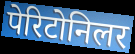
पेरिटोनिलर